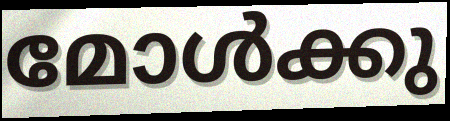
മോൾക്കു